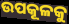
ଉପକୂଳକୁ